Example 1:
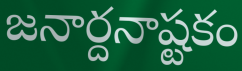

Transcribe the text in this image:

జనార్దనాష్టకం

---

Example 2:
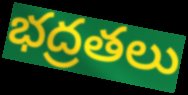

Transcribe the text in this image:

భద్రతలు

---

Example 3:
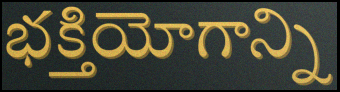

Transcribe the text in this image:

భక్తియోగాన్ని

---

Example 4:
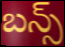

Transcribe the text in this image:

బన్స్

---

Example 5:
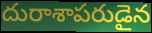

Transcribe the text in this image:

దురాశాపరుడైన